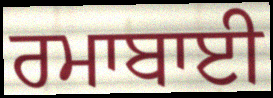
ਰਮਾਬਾਈ